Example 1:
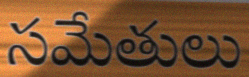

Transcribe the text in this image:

సమేతులు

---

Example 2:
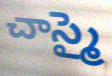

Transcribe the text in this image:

చాస్మై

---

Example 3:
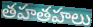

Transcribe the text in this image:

తహతహలు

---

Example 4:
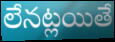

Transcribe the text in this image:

లేనట్లయితే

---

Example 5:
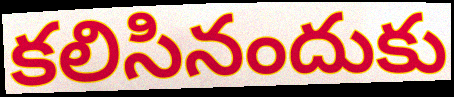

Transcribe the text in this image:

కలిసినందుకు